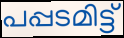
പപ്പടമിട്ട്